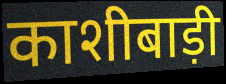
काशीबाड़ी